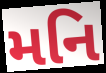
મનિ